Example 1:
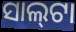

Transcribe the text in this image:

ସାଲ୍‌ଟା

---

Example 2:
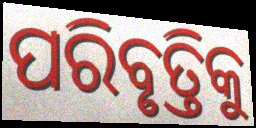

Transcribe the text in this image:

ପରିବୃତ୍ତିକୁ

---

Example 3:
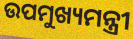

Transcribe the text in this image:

ଉପମୁଖ୍ୟମନ୍ତ୍ରୀ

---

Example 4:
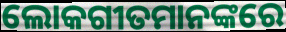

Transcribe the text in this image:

ଲୋକଗୀତମାନଙ୍କରେ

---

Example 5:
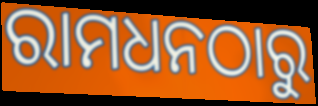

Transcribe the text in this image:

ରାମଧନଠାରୁ